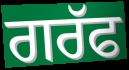
ਗਰੱਫ